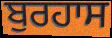
ਬੁਰਹਾਸ